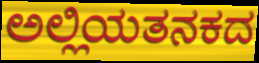
ಅಲ್ಲಿಯತನಕದ